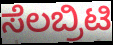
ಸೆಲಬ್ರಿಟಿ